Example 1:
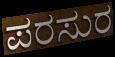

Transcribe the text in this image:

ಪರಸುರ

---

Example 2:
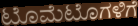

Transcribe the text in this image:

ಟೊಮೆಟೊಗಳಿಗೆ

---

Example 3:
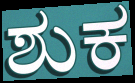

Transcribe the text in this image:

ಶುಕ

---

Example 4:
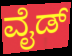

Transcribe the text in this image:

ವೈಡ್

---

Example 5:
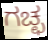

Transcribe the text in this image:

ಗಚ್ಛ